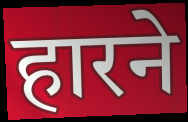
हारने